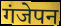
गंजेपन